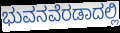
ಭುವನವೆರಡಾದಲ್ಲಿ